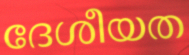
ദേശീയത